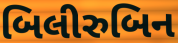
બિલીરુબિન